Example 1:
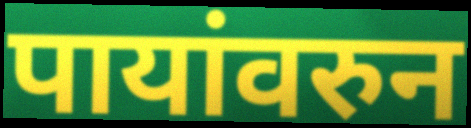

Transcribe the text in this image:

पायांवरुन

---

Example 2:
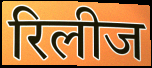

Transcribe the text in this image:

रिलीज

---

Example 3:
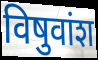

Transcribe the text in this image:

विषुवांश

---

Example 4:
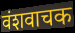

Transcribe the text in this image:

वंशवाचक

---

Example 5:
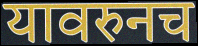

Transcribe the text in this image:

यावरुनच